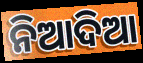
ନିଆଦିଆ